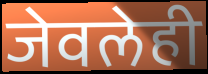
जेवलेही